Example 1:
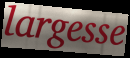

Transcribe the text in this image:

largesse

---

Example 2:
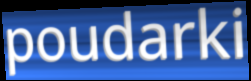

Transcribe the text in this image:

poudarki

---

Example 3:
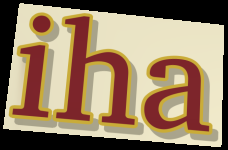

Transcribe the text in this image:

iha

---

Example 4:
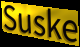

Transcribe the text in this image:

Suske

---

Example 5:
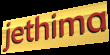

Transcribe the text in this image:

jethima